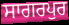
ਸਾਗਰਪੁਰ